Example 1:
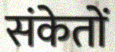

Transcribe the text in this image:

संकेतों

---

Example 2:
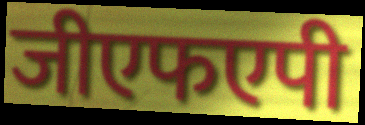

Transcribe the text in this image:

जीएफएपी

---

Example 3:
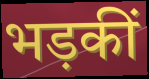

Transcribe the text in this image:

भड़कीं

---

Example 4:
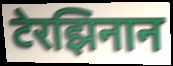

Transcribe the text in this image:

टेरझिनान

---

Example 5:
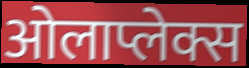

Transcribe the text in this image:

ओलाप्लेक्स